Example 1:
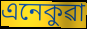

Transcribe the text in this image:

এনেকুৱা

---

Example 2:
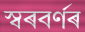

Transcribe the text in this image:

স্বৰবৰ্ণৰ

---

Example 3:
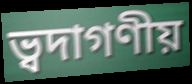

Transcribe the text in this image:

ভ্বদাগণীয়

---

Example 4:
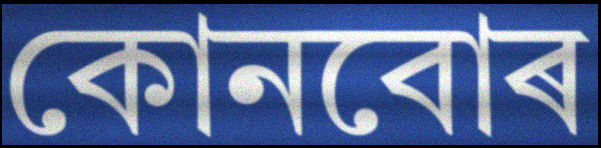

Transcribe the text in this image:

কোনবোৰ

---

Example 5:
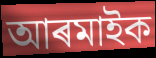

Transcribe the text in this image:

আৰমাইক